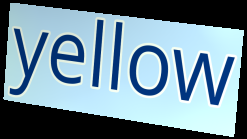
yellow